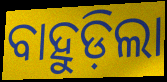
ବାହୁଡ଼ିଲା